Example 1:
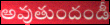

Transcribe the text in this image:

అవుతుందండీ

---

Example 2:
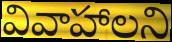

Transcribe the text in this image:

వివాహాలని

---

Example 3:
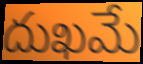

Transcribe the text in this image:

దుఖమే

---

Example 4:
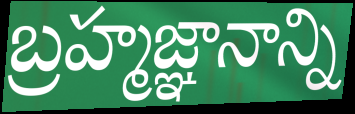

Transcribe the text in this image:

బ్రహ్మజ్ఞానాన్ని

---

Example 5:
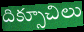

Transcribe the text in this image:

దిక్సూచిలు